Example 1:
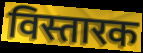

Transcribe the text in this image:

विस्तारक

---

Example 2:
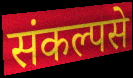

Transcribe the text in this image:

संकल्पसे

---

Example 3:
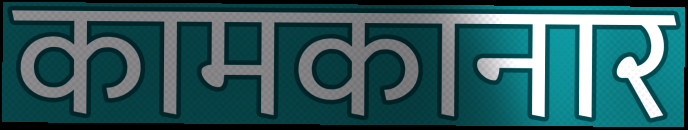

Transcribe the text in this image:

कामकानार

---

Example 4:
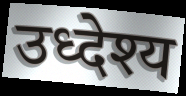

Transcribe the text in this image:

उध्देश्य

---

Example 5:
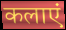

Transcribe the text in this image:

कलाएं